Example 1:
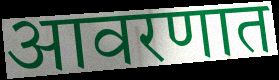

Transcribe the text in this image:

आवरणात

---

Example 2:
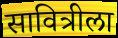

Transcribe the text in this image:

सावित्रीला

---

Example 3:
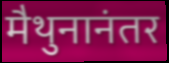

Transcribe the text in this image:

मैथुनानंतर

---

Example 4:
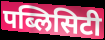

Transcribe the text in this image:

पब्लिसिटी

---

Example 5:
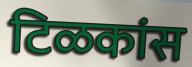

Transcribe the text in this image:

टिळकांस